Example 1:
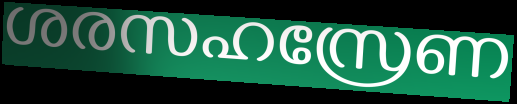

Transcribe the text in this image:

ശരസഹസ്രേണ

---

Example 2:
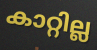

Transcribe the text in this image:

കാറ്റില്ല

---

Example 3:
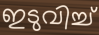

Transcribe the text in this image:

ഇടുവിച്ച്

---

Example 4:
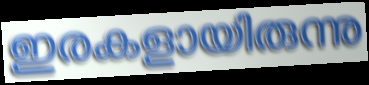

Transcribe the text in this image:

ഇരകളായിരുന്നു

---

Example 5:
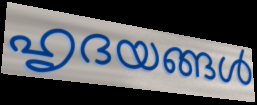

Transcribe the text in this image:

ഹൃദയങ്ങൾ